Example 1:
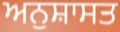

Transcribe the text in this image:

ਅਨੁਸ਼ਾਸਤ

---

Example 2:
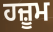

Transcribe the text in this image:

ਹਜ਼ੂਮ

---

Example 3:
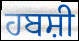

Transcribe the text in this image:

ਹਬਸ਼ੀ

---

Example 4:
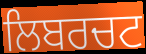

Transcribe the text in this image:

ਲਿਬਰਚਟ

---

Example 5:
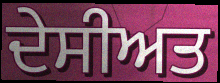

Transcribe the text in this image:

ਦੇਸੀਅਤ